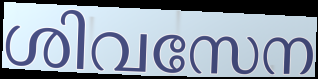
ശിവസേന